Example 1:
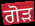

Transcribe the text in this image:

ਗੋੜ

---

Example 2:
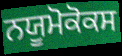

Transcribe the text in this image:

ਨਯੂਮੋਕੋਕਸ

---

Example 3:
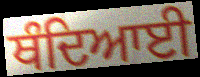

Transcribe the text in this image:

ਥੰਦਿਆਈ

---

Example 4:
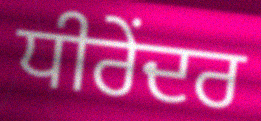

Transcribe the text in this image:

ਧੀਰੇਂਦਰ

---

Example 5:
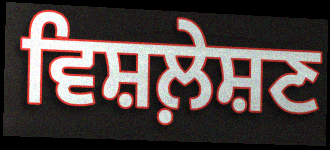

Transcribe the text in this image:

ਵਿਸ਼ਲ਼ੇਸ਼ਣ